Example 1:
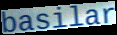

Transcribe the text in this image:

basilar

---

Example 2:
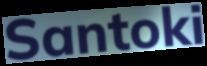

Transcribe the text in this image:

Santoki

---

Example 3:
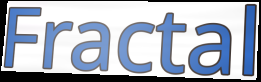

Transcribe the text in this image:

Fractal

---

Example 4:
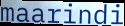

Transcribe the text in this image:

maarindi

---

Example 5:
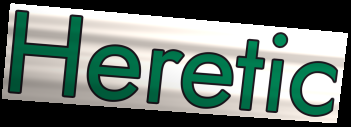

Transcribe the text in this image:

Heretic